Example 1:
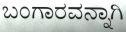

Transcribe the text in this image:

ಬಂಗಾರವನ್ನಾಗಿ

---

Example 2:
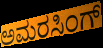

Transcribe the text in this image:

ಅಮರಸಿಂಗ್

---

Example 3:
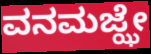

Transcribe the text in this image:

ವನಮಜ್ಝೇ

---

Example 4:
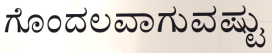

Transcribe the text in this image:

ಗೊಂದಲವಾಗುವಷ್ಟು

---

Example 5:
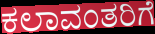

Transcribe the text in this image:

ಕಲಾವಂತರಿಗೆ